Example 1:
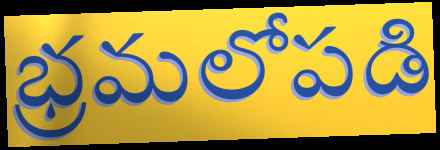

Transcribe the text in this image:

భ్రమలోపడి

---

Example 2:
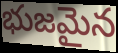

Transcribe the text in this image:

భుజమైన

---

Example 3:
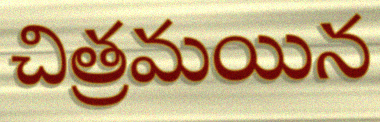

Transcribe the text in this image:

చిత్రమయిన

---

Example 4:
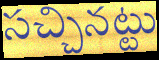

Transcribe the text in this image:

సచ్చినట్టు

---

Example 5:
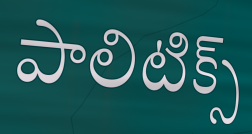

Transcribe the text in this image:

పాలిటిక్స్